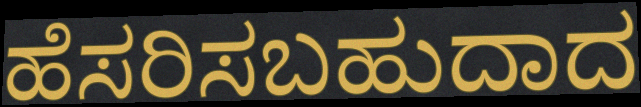
ಹೆಸರಿಸಬಹುದಾದ